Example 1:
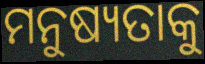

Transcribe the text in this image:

ମନୁଷ୍ୟତାକୁ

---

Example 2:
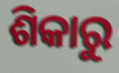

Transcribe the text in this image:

ଶିକାରୁ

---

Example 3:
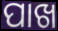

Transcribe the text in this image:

ପାଖ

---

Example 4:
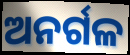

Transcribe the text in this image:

ଅନର୍ଗଳ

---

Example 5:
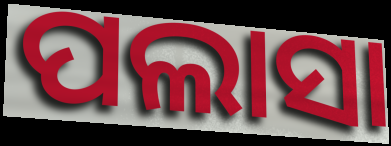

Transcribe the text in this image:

ପଲାସା